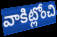
వాకిట్లోంచి